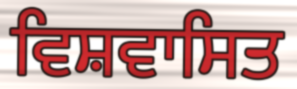
ਵਿਸ਼ਵਾਸਿਤ